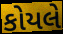
કોયલે